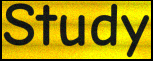
Study